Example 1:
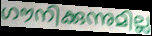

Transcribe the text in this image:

ഗൗനിക്കുന്നുമില്ല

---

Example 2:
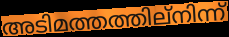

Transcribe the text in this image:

അടിമത്തത്തില്നിന്ന്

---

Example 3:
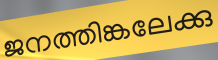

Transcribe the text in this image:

ജനത്തിങ്കലേക്കു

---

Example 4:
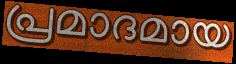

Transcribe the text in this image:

പ്രമാദമായ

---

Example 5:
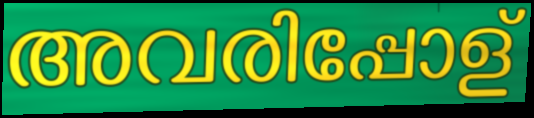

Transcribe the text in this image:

അവരിപ്പോള്